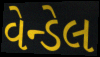
વેન્ડેલ